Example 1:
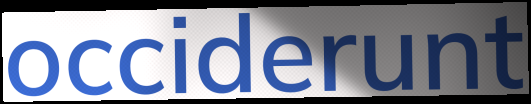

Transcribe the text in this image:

occiderunt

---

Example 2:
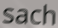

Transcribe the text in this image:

sach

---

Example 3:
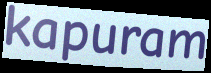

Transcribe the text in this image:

kapuram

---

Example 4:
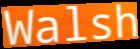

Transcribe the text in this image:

Walsh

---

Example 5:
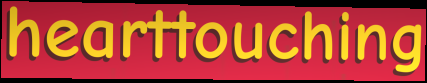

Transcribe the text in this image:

hearttouching